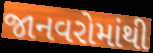
જાનવરોમાંથી